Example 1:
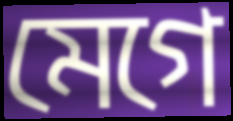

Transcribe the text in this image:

মেগে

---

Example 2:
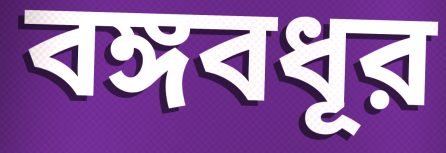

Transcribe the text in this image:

বঙ্গবধূর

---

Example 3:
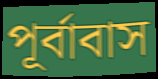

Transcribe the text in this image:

পূর্বাবাস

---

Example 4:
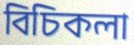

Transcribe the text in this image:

বিচিকলা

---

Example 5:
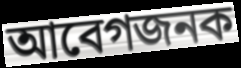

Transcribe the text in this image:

আবেগজনক